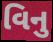
વિનુ